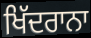
ਖਿੱਦਰਾਨਾ